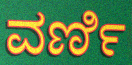
ವರ್ಣಿ